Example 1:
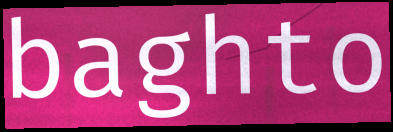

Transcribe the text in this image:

baghto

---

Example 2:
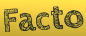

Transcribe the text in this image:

Facto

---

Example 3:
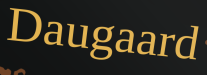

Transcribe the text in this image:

Daugaard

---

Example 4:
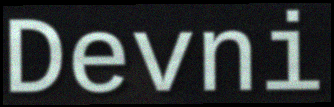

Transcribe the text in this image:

Devni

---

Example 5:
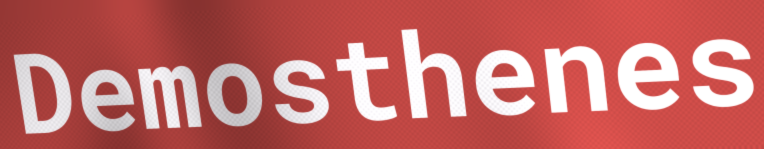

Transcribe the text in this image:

Demosthenes